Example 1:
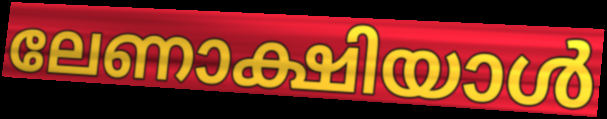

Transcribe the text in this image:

ലേണാക്ഷിയാൾ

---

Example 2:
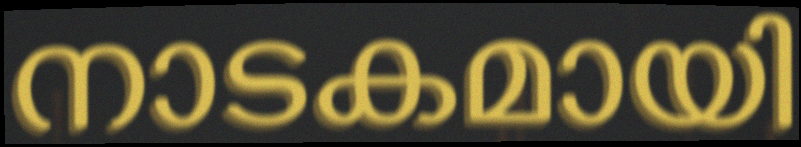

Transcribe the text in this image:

നാടകമായി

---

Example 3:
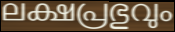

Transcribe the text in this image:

ലക്ഷപ്രഭുവും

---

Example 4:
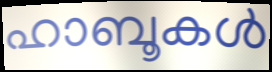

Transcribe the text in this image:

ഹാബൂകൾ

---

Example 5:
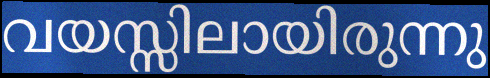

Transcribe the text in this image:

വയസ്സിലായിരുന്നു